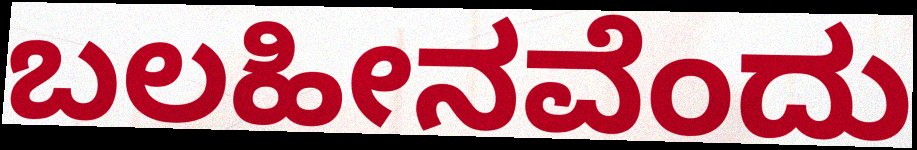
ಬಲಹೀನವೆಂದು